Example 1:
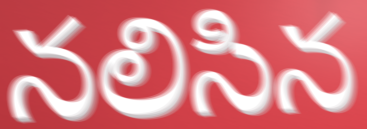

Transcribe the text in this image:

నలిసిన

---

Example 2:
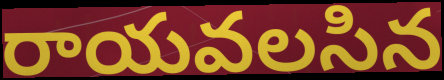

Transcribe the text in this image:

రాయవలసిన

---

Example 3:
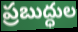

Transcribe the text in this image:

ప్రబుద్ధుల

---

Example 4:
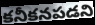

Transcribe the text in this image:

కనీకనపడని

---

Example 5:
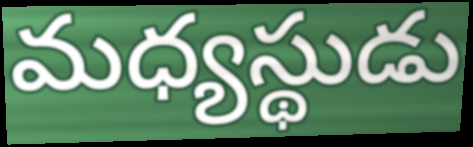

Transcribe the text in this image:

మధ్యస్థుడు